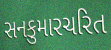
સનકુમારચરિત